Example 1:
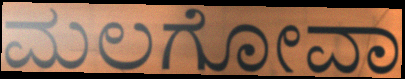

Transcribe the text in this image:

ಮಲಗೋವಾ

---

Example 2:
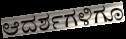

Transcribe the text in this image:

ಆದರ್ಶಗಳಿಗೂ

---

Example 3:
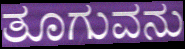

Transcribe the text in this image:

ತೂಗುವನು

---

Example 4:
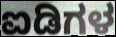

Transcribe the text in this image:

ಐಡಿಗಳ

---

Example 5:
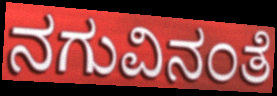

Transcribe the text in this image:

ನಗುವಿನಂತೆ